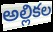
అల్లికల